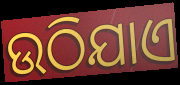
ଉଠିଯାଏ